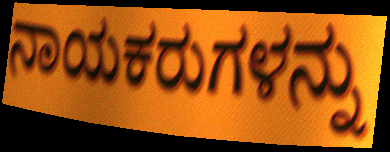
ನಾಯಕರುಗಳನ್ನು